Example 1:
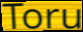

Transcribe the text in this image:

Toru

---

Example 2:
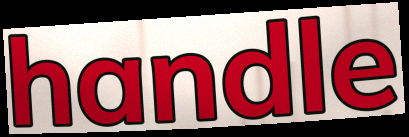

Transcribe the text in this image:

handle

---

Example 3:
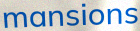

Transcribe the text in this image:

mansions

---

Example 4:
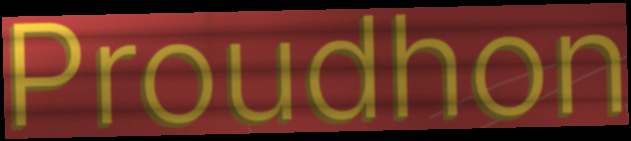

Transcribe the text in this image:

Proudhon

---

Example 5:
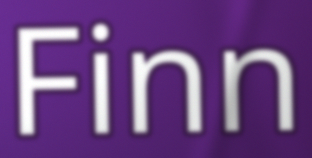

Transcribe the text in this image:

Finn